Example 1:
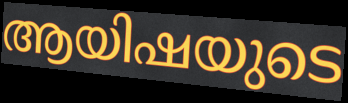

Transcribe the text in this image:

ആയിഷയുടെ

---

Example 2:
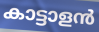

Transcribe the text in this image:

കാട്ടാളൻ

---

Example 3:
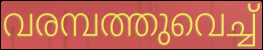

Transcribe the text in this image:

വരമ്പത്തുവെച്ച്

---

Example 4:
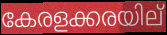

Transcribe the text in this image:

കേരളക്കരയില്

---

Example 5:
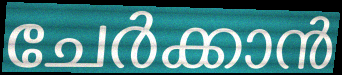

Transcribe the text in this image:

ചേർക്കാൻ